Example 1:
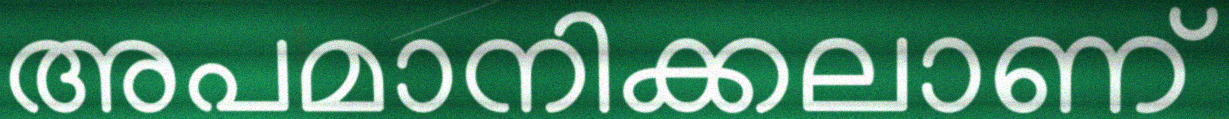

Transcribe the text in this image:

അപമാനിക്കലാണ്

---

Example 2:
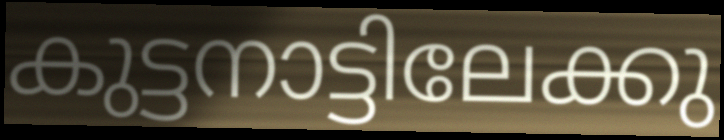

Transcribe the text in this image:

കുട്ടനാട്ടിലേക്കു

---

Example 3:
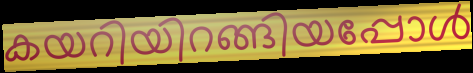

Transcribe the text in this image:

കയറിയിറങ്ങിയപ്പോൾ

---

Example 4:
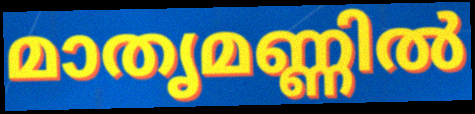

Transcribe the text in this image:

മാതൃമണ്ണിൽ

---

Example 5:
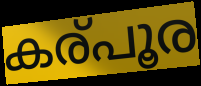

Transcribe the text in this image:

കര്പൂര